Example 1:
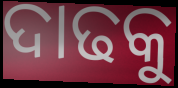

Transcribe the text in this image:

ଦାଢକୁ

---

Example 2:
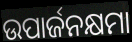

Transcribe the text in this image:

ଉପାର୍ଜନକ୍ଷମା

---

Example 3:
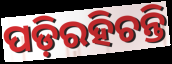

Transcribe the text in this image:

ପଡ଼ିରହିଚନ୍ତି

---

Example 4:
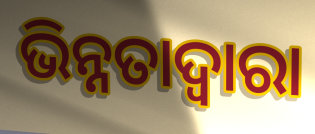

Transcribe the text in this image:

ଭିନ୍ନତାଦ୍ୱାରା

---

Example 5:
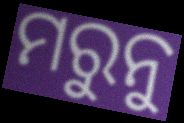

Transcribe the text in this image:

ମରୁନୁ